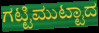
ಗಟ್ಟಿಮುಟ್ಟಾದ